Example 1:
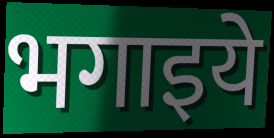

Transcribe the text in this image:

भगाइये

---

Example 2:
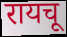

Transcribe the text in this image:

रायचू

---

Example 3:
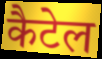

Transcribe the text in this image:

कैटेल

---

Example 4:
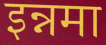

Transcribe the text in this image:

इन्नमा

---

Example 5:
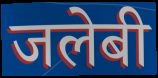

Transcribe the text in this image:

जलेबी